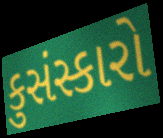
કુસંસ્કારો